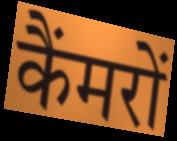
कैंमरों